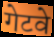
गेटवे